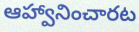
ఆహ్వానించారట